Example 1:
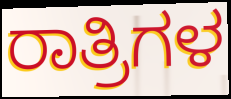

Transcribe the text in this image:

ರಾತ್ರಿಗಳ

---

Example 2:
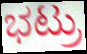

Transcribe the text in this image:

ಭಟ್ರು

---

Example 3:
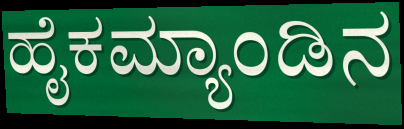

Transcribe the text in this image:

ಹೈಕಮ್ಯಾಂಡಿನ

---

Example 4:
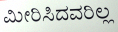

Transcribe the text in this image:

ಮೀರಿಸಿದವರಿಲ್ಲ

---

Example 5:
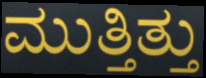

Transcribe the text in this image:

ಮುತ್ತಿತ್ತು